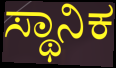
ಸ್ಥಾನಿಕ